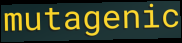
mutagenic